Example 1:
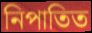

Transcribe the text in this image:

নিপাতিত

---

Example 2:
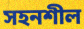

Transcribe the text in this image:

সহনশীল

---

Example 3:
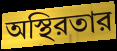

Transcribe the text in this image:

অস্থিরতার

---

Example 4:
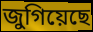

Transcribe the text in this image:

জুগিয়েছে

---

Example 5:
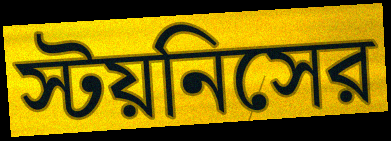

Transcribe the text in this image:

স্টয়নিসের